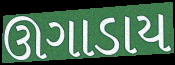
ઊગાડાય